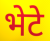
भेटे